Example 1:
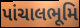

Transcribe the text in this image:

પાંચાલભૂમિ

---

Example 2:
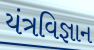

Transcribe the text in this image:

યંત્રવિજ્ઞાન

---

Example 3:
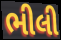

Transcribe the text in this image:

ભીલી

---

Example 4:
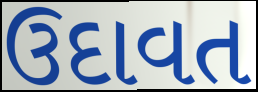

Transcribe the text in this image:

ઉદાવત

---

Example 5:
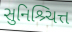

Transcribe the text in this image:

સુનિશ્ર્ચિત્ત